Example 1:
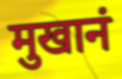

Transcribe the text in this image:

मुखानं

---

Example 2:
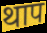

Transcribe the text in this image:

थाप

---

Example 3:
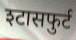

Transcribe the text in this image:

श्टासफुर्ट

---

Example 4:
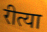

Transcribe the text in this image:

रीत्या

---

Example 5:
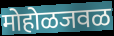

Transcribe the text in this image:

मोहोळजवळ